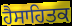
ਹੈਸਾਹਿਤਕ